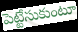
పెట్టేసుకుంటూ